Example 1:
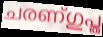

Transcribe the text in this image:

ചരണ്ഗുപ്ത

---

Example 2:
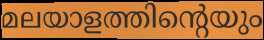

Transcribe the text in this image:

മലയാളത്തിന്റെയും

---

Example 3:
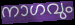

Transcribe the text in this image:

നാഗവും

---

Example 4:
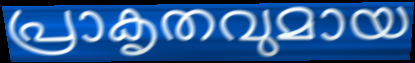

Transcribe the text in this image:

പ്രാകൃതവുമായ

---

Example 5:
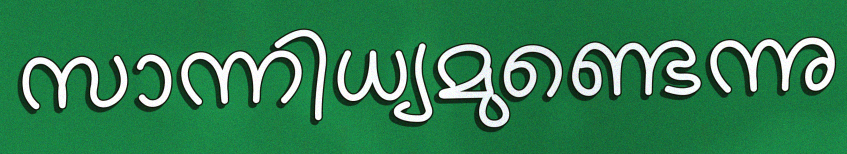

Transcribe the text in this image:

സാന്നിധ്യമുണ്ടെന്നു